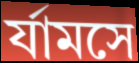
র্যামসে